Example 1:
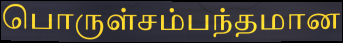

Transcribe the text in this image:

பொருள்சம்பந்தமான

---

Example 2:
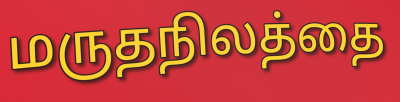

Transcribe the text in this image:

மருதநிலத்தை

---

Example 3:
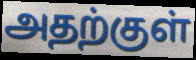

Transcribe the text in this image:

அதற்குள்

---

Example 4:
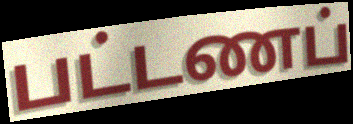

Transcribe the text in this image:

பட்டணப்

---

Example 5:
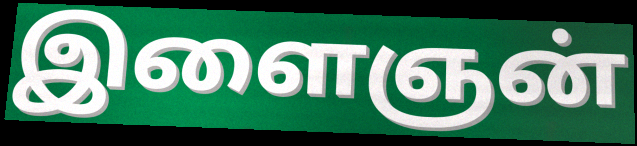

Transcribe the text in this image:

இளைஞன்